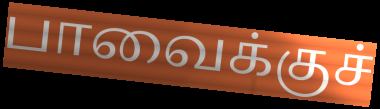
பாவைக்குச்